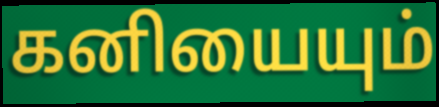
கனியையும்